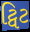
ટ્વિટ